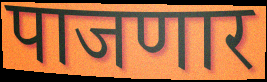
पाजणार